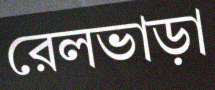
রেলভাড়া